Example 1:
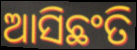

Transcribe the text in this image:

ଆସିଛଂତି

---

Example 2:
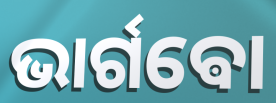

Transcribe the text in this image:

ଭାର୍ଗଵୋ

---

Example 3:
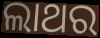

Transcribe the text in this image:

ଲାଥର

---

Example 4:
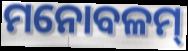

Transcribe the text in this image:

ମନୋବଳମ୍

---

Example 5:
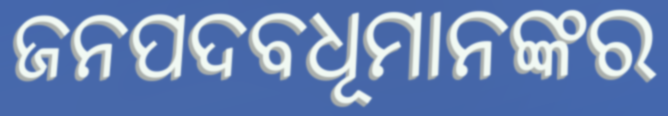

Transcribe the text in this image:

ଜନପଦବଧୂମାନଙ୍କର